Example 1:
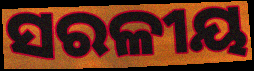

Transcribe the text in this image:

ସରଳୀୟ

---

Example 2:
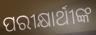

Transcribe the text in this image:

ପରୀକ୍ଷାର୍ଥୀଙ୍କ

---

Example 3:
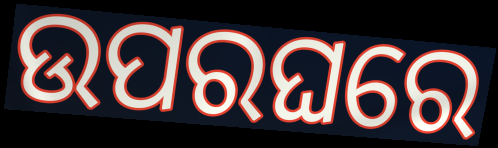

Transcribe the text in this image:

ଉପରଘରେ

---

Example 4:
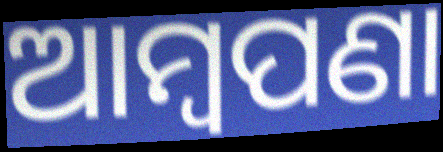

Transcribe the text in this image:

ଆମ୍ବପଣା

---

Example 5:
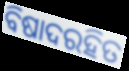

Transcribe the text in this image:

ବିଷାଦରହିତ